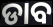
ଡାବ